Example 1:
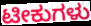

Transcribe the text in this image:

ಟೀಕುಗಳು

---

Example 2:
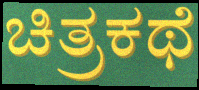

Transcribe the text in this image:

ಚಿತ್ರಕಥೆ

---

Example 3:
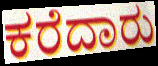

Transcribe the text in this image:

ಕರೆದಾರು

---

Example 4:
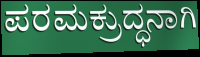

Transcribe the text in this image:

ಪರಮಕ್ರುದ್ಧನಾಗಿ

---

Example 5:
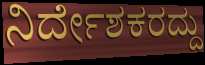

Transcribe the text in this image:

ನಿರ್ದೇಶಕರದ್ದು